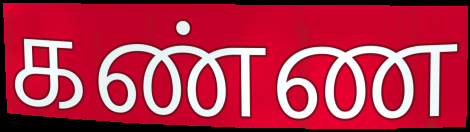
கண்ண